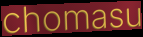
chomasu